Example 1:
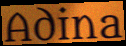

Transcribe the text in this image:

Adina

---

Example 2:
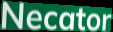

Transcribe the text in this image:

Necator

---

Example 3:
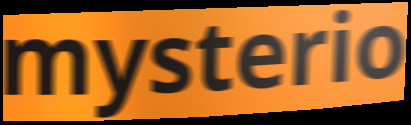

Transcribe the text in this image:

mysterio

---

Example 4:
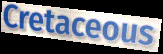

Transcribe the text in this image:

Cretaceous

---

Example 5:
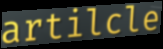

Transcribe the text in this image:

artilcle